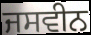
ਜਸਵੀਨ